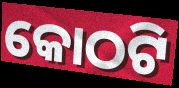
କୋଠଟି